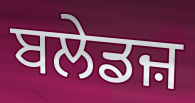
ਬਲੇਡਜ਼